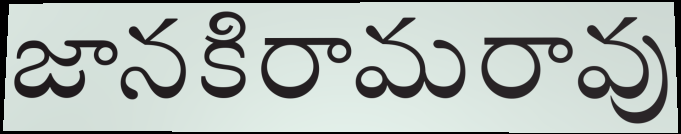
జానకిరామరావు